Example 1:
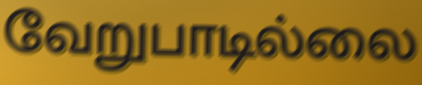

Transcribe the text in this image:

வேறுபாடில்லை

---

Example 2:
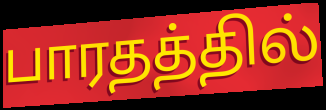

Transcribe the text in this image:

பாரதத்தில்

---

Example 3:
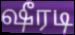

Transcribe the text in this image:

ஷீரடி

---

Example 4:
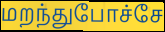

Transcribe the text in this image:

மறந்துபோச்சே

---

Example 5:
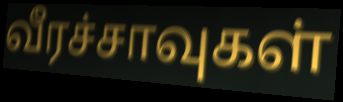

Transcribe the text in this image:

வீரச்சாவுகள்